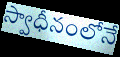
స్వాధీనంలోనే